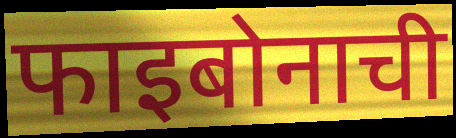
फाइबोनाची